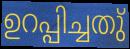
ഉറപ്പിച്ചതു്